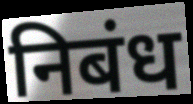
निबंध